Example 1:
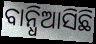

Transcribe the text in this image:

ବାନ୍ଧିଆସିଛି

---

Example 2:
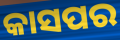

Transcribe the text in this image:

କାସପର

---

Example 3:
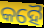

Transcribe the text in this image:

କହୈ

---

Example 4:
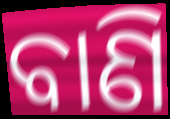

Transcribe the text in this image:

ବାଣି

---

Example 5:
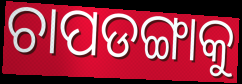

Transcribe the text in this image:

ଚାପଡଙ୍ଗାକୁ